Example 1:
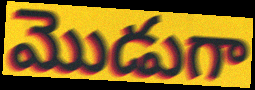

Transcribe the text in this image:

మొడుగా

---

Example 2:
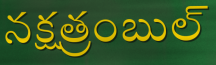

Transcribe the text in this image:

నక్షత్రంబుల్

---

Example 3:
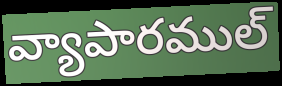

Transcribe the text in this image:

వ్యాపారముల్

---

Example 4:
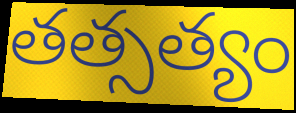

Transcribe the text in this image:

తత్సత్యం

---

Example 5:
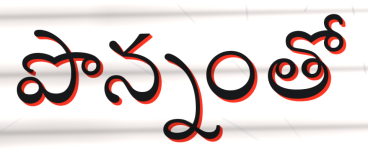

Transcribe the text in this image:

పొన్నంతో